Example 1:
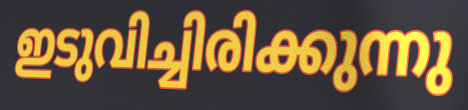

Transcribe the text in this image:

ഇടുവിച്ചിരിക്കുന്നു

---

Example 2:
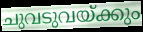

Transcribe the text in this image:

ചുവടുവയ്ക്കും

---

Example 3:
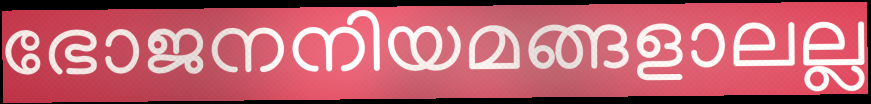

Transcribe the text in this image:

ഭോജനനിയമങ്ങളാലല്ല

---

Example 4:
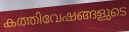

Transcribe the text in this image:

കത്തിവേഷങ്ങളുടെ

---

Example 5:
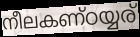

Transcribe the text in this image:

നീലകണ്ഠയ്യര്